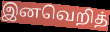
இனவெறித்